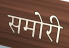
समोरी